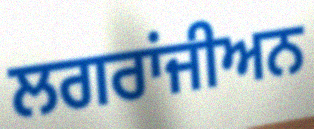
ਲਗਰਾਂਜੀਅਨ